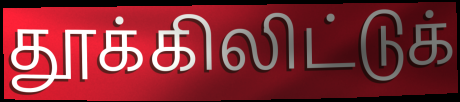
தூக்கிலிட்டுக்